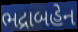
ભદ્રાબહેન